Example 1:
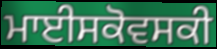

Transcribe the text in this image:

ਮਾਈਸਕੋਵਸਕੀ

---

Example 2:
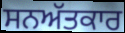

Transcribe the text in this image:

ਸਨਅੱਤਕਾਰ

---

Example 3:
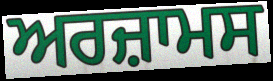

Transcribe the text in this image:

ਅਰਜ਼ਾਮਸ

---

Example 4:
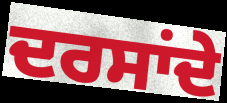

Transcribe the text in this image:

ਦਰਸਾਂਦੇ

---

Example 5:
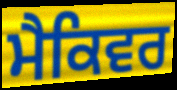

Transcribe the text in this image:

ਮੈਕਿਵਰ